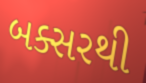
બક્સરથી